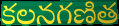
కలనగణిత